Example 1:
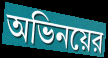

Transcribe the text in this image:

অভিনয়ের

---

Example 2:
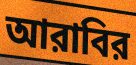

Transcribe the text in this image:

আরাবির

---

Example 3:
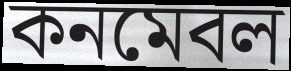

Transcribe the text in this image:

কনমেবল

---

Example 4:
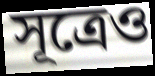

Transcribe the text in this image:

সূত্রেও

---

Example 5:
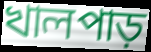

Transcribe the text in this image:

খালপাড়